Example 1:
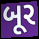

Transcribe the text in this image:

બૂર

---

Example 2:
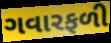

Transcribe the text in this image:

ગવારફળી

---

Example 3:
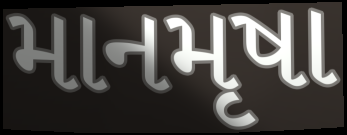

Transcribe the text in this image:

માનમૃષા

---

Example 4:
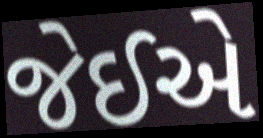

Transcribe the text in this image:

જેઈએ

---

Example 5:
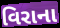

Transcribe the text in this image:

વિરાના